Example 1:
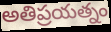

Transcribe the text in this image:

అతిప్రయత్నం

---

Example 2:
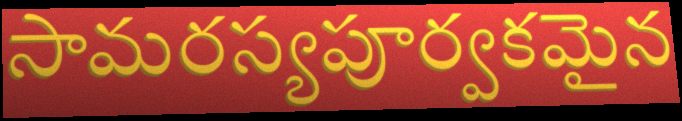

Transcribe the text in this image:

సామరస్యపూర్వకమైన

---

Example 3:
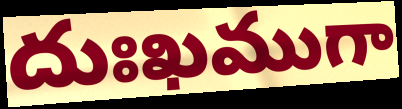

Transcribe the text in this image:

దుఃఖముగా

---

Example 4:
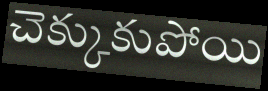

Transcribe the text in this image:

చెక్కుకుపోయి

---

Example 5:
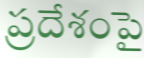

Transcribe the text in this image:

ప్రదేశంపై